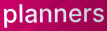
planners